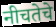
नीचतेचे